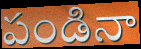
పండినా